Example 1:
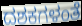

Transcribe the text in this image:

ದಶಕಗಳಂತೆ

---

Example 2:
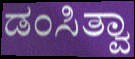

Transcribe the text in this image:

ಡಂಸಿತ್ವಾ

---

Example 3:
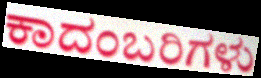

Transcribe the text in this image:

ಕಾದಂಬರಿಗಳು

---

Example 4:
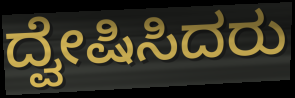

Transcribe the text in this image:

ದ್ವೇಷಿಸಿದರು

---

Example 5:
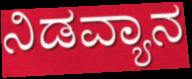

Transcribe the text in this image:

ನಿಡವ್ಯಾನ